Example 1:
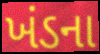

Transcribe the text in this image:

ખંડના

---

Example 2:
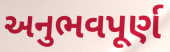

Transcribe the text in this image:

અનુભવપૂર્ણ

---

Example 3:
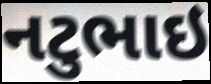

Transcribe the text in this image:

નટુભાઇ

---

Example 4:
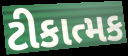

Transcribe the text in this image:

ટીકાત્મક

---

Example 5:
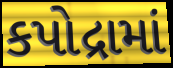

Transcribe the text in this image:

કપોદ્રામાં